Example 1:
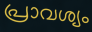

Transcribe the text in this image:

പ്രാവശ്യം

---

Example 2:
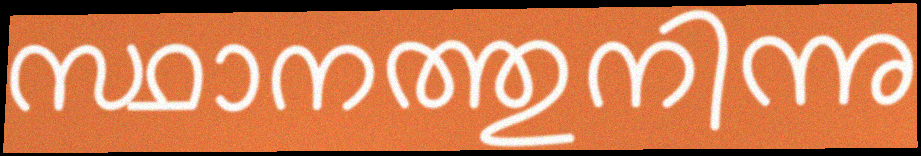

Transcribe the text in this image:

സ്ഥാനത്തുനിന്നു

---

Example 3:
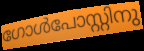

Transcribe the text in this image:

ഗോൾപോസ്റ്റിനു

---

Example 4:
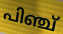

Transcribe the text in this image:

പിഞ്ച്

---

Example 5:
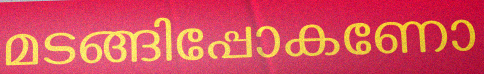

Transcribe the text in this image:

മടങ്ങിപ്പോകണോ